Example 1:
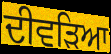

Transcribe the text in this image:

ਦੀਵੜਿਆ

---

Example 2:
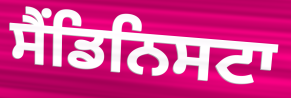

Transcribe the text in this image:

ਸੈਂਡਿਨਿਸਟਾ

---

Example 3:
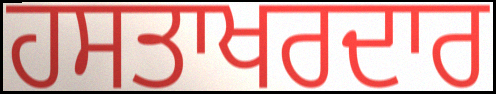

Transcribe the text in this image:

ਹਸਤਾਖਰਦਾਰ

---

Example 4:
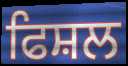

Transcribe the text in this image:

ਫਿਸ਼ਲ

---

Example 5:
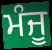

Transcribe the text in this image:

ਮੰਜੂ